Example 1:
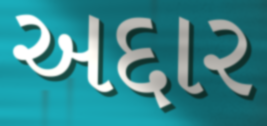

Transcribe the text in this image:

અદ્દાર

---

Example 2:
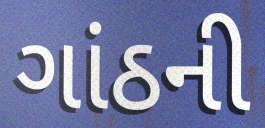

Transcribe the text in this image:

ગાંઠની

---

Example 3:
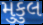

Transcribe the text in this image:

મુકુલ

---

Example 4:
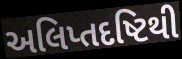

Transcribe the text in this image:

અલિપ્તદષ્ટિથી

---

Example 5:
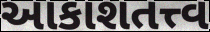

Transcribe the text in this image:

આકાશતત્ત્વ